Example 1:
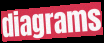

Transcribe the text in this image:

diagrams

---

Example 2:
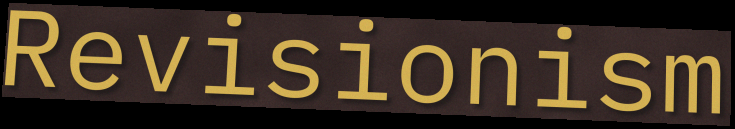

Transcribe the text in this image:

Revisionism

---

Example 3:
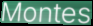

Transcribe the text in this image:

Montes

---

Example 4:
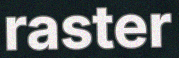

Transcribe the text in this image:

raster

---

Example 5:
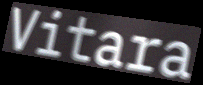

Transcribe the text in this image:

Vitara